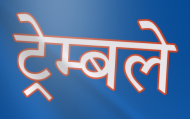
ट्रेम्बले